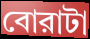
বোরাটা